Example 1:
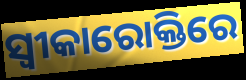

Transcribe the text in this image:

ସ୍ଵୀକାରୋକ୍ତିରେ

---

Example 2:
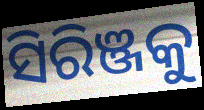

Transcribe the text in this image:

ସିରିଞ୍ଜକୁ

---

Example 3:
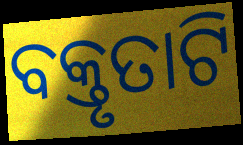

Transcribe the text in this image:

ବକ୍ତୃତାଟି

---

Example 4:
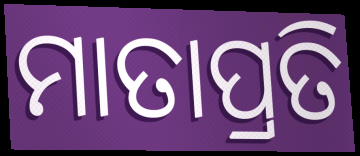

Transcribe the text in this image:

ମାତାପ୍ରତି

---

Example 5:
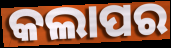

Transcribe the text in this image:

କଲାପର